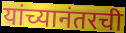
यांच्यानंतरची